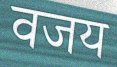
वजय